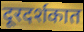
दूरदर्शकात